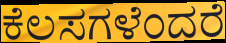
ಕೆಲಸಗಳೆಂದರೆ